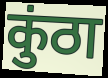
कुंठा